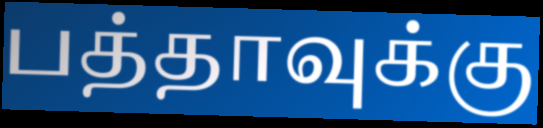
பத்தாவுக்கு